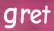
gret